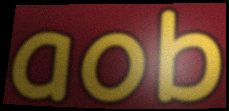
aob